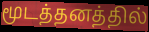
மூடத்தனத்தில்